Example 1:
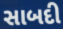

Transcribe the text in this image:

સાબદી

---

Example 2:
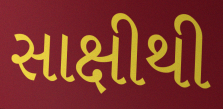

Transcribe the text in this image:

સાક્ષીથી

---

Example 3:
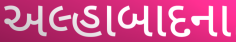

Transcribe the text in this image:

અલ્હાબાદના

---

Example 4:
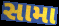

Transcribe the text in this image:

સામા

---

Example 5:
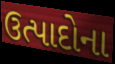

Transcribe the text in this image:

ઉત્પાદોના